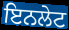
ਇਨਲੇਟ